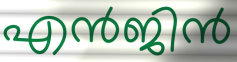
എൻജിൻ